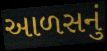
આળસનું